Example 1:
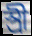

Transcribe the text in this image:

স্ত্ৰী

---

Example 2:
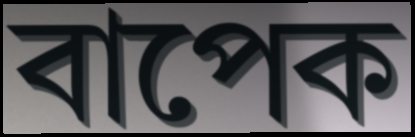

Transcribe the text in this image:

বাপেক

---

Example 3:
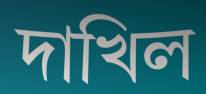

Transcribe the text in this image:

দাখিল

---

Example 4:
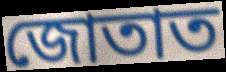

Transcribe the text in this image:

জোতাত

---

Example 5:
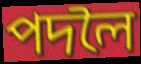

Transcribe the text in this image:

পদলৈ